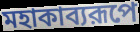
মহাকাব্যরূপে